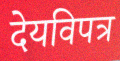
देयविपत्र